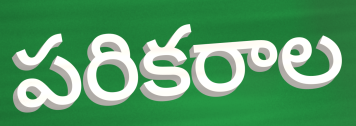
పరికరాల